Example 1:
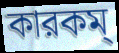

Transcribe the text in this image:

কারকম্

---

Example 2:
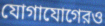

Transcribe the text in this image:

যোগাযোগেরও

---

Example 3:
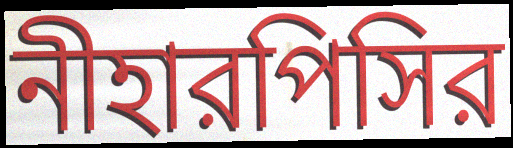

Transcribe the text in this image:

নীহারপিসির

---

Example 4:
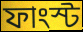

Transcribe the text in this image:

ফাংস্ট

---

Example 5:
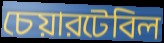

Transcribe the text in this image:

চেয়ারটেবিল